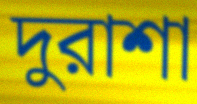
দুরাশা